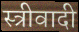
स्त्रीवादी